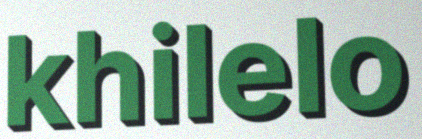
khilelo